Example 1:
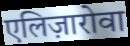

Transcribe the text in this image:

एलिज़ारोवा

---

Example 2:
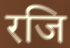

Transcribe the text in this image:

रजि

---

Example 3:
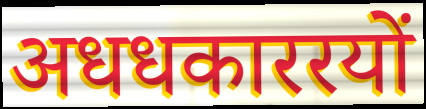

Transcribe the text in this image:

अधधकाररयों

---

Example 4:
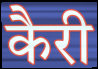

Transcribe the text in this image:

कैरी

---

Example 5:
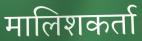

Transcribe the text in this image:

मालिशकर्ता